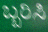
ಬ್ಬರಿಸಿ